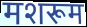
मशरूम